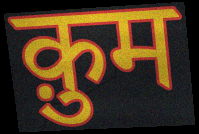
क़ुम